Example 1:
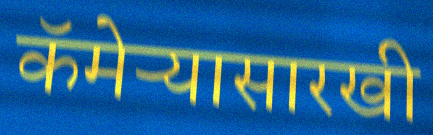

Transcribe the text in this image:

कॅमेऱ्यासारखी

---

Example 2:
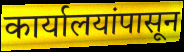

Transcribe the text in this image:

कार्यालयांपासून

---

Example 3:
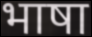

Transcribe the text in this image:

भाषा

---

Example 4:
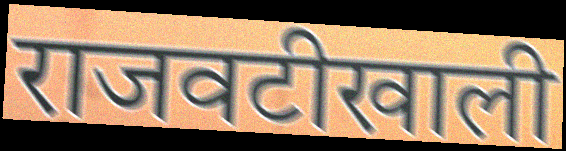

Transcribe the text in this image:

राजवटीखाली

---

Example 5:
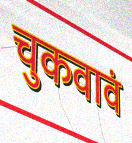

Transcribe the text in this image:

चुकवावं